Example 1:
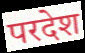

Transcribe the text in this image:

परदेश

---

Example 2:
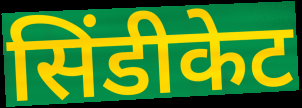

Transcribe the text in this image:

सिंडीकेट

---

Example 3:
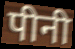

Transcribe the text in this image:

पीनी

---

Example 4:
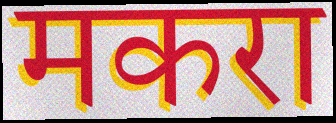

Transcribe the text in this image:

मकरा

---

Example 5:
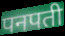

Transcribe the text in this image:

पनपती